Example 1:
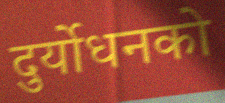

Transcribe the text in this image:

दुर्योधनको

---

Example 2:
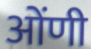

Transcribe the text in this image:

ओंणी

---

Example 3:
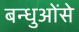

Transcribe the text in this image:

बन्धुओंसे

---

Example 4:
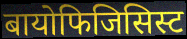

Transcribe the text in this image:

बायोफिजिसिस्ट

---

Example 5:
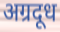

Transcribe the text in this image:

अग्रदूध